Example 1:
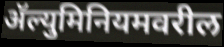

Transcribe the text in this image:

ॲल्युमिनियमवरील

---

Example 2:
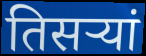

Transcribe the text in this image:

तिसऱ्यां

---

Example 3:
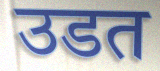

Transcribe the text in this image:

उडत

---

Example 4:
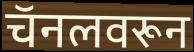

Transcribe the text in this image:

चॅनलवरून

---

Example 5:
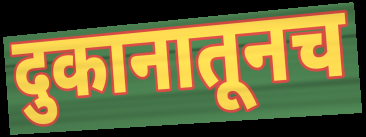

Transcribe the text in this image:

दुकानातूनच